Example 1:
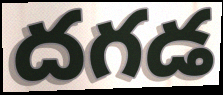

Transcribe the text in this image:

దగడ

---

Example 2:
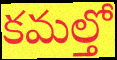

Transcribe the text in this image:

కమల్తో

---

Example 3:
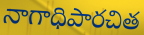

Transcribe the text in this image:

నాగాధిపారచిత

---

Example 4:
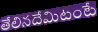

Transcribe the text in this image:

తేలినదేమిటంటే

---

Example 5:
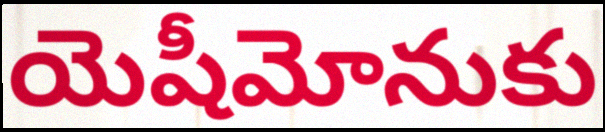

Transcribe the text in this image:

యెషీమోనుకు